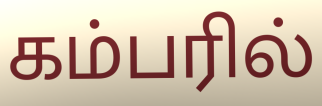
கம்பரில்